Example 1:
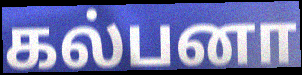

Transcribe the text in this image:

கல்பனா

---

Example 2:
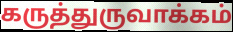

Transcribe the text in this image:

கருத்துருவாக்கம்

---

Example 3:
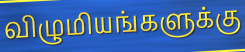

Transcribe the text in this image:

விழுமியங்களுக்கு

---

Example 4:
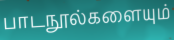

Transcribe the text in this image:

பாடநூல்களையும்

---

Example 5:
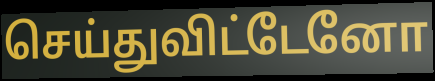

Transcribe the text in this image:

செய்துவிட்டேனோ